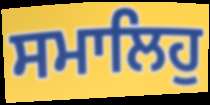
ਸਮਾਲਿਹੁ